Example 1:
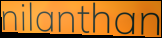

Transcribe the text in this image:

nilanthan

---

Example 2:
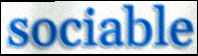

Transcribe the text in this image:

sociable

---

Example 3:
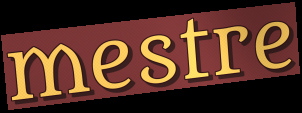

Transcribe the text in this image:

mestre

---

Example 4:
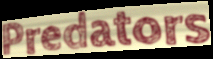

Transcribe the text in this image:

Predators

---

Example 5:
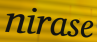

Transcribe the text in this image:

nirase